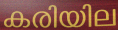
കരിയില